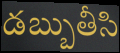
డబ్బుతీసి